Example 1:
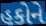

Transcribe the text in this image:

હકોને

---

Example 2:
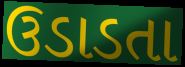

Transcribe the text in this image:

ઉડાડતા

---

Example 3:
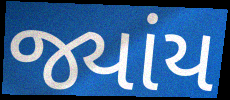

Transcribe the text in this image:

જ્યાંય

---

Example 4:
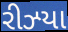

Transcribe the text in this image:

રીઝ્યા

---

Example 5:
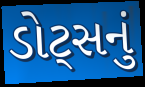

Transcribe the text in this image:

ડોટ્સનું